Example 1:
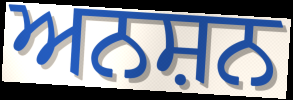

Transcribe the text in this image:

ਅਨਸ਼ਨ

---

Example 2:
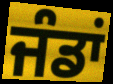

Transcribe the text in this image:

ਜੰਡਾਂ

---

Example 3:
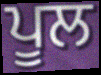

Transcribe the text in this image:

ਪੂਲ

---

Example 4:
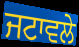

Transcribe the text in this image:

ਜਟਾਵਲੇ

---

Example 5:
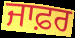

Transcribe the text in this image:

ਜਾਫ਼ਰ